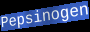
Pepsinogen